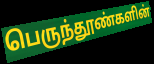
பெருந்தூண்களின்